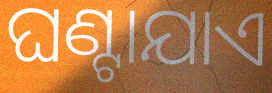
ଘଣ୍ଟାଯାଏ